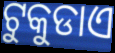
ଟୁକୁଡାଏ